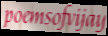
poemsofvijay